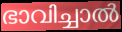
ഭാവിച്ചാൽ